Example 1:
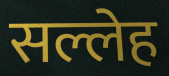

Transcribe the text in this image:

सल्लेह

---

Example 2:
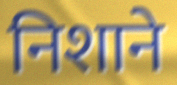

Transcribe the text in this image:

निशाने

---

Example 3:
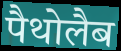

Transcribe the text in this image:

पैथोलैब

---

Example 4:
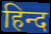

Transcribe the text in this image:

हिन्द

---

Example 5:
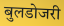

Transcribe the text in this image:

बुलडोजरी